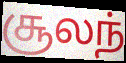
சூலந்